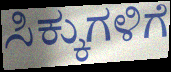
ಸಿಕ್ಕುಗಳಿಗೆ